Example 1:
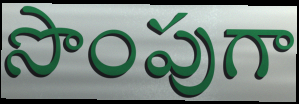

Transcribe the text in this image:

సొంపుగా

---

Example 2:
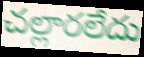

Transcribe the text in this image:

చల్లారలేదు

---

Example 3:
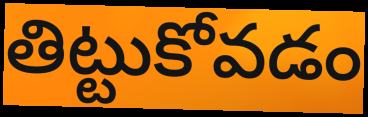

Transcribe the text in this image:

తిట్టుకోవడం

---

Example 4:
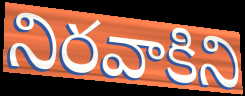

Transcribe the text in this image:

నిరవాకిని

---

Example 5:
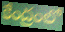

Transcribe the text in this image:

కేంద్రంలో